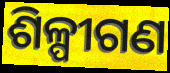
ଶିଳ୍ପୀଗଣ